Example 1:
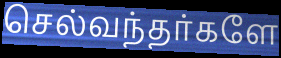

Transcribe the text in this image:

செல்வந்தர்களே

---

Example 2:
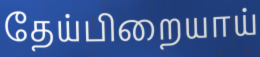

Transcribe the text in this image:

தேய்பிறையாய்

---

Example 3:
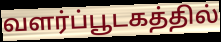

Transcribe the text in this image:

வளர்ப்பூடகத்தில்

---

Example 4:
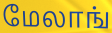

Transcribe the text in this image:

மேலாங்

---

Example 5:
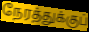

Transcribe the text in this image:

நேரத்துக்குப்